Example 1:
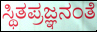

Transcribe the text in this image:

ಸ್ಥಿತಪ್ರಜ್ಞನಂತೆ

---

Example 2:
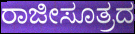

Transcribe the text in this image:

ರಾಜೀಸೂತ್ರದ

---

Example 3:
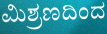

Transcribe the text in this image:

ಮಿಶ್ರಣದಿಂದ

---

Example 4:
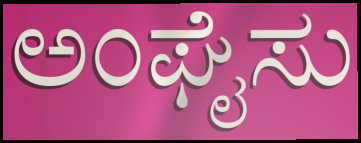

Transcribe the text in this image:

ಅಂಘೈಸು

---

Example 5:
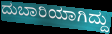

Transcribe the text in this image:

ದುಬಾರಿಯಾಗಿದ್ದು